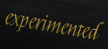
experimented